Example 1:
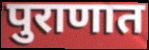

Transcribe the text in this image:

पुराणात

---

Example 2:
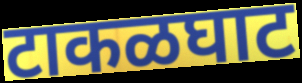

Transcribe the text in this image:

टाकळघाट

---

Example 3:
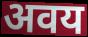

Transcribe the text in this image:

अवय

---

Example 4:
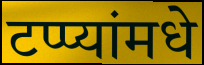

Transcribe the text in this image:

टप्प्यांमधे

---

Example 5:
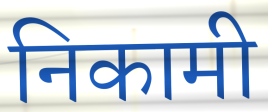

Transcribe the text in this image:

निकामी